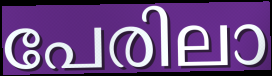
പേരിലാ